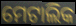
ମେଟାଲିକ